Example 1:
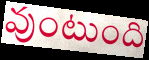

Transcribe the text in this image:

వుంటుంది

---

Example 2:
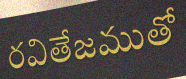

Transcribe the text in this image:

రవితేజముతో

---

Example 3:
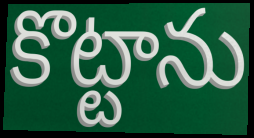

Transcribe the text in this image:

కొట్టాను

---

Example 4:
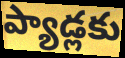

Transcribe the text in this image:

ప్యాడ్లకు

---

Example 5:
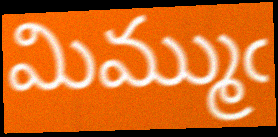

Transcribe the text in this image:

మిమ్ముఁ